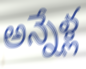
అన్నేళ్ల